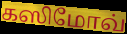
கஸிமோவ்